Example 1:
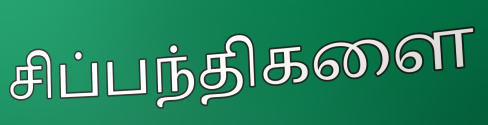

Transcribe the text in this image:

சிப்பந்திகளை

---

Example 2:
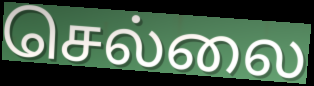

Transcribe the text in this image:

செல்லை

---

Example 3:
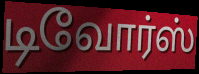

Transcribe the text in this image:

டிவோர்ஸ்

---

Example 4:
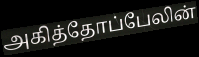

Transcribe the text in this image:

அகித்தோப்பேலின்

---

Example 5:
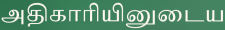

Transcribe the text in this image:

அதிகாரியினுடைய